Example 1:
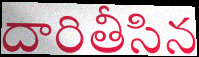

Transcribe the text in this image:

దారితీసిన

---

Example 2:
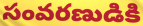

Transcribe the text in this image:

సంవరణుడికి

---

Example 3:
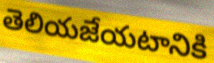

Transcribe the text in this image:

తెలియజేయటానికి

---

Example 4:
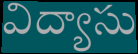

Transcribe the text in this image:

విద్యాసు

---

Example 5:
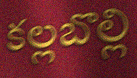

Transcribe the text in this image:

కల్లబొల్లి